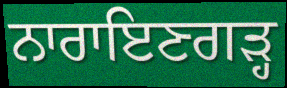
ਨਾਰਾਇਣਗੜ੍ਹ